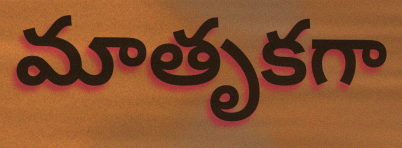
మాతృకగా